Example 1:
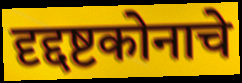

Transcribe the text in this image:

दृद्दष्टकोनाचे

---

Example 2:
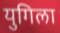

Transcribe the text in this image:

युगिला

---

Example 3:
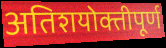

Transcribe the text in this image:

अतिशयोक्तीपूर्ण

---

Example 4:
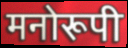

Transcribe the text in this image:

मनोरूपी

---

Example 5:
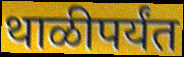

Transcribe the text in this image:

थाळीपर्यंत